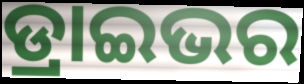
ଡ୍ରାଇଭର